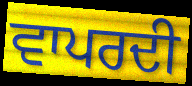
ਵਾਪਰਦੀ